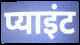
प्याइंट